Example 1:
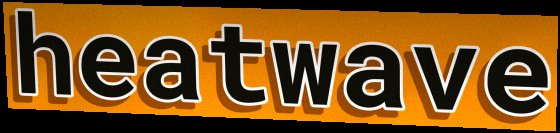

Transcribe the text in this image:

heatwave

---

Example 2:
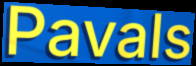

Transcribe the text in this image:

Pavals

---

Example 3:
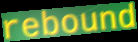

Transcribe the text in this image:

rebound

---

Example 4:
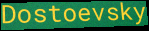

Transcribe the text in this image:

Dostoevsky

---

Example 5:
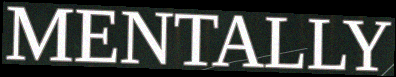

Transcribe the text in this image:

MENTALLY